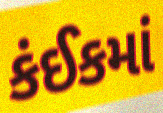
કંઈકમાં